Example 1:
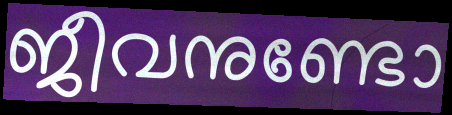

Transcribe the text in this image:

ജീവനുണ്ടോ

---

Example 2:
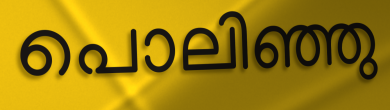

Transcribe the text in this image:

പൊലിഞ്ഞു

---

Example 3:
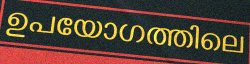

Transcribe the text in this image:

ഉപയോഗത്തിലെ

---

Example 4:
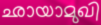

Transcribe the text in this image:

ഛായാമുഖി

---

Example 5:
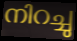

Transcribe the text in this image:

നിറച്ചു